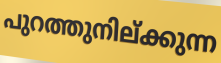
പുറത്തുനില്ക്കുന്ന